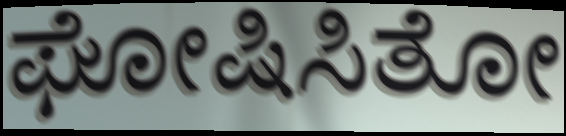
ಘೋಷಿಸಿತೋ